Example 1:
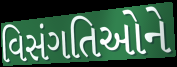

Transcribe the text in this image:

વિસંગતિઓને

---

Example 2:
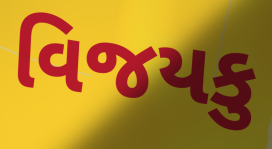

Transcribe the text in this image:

વિજયકુ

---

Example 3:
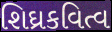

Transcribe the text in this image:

શિઘ્રકવિત્વ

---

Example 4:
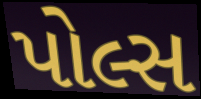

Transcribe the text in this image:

પોલ્સ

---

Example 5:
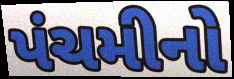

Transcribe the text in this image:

પંચમીનો